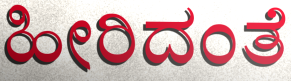
ಹೀರಿದಂತೆ